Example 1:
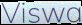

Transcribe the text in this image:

Viswa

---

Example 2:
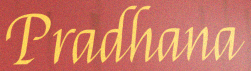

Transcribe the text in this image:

Pradhana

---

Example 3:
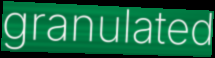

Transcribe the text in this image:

granulated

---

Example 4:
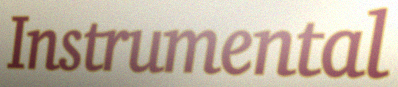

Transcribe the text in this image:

Instrumental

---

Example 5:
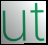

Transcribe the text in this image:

ut